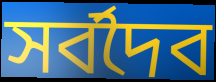
সর্বদৈব